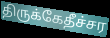
திருக்கேதீச்சர